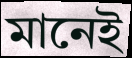
মানেই